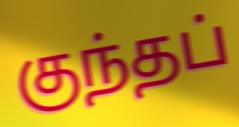
குந்தப்